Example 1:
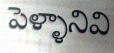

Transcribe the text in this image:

పెళ్ళానివి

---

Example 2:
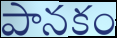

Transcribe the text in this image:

పానకం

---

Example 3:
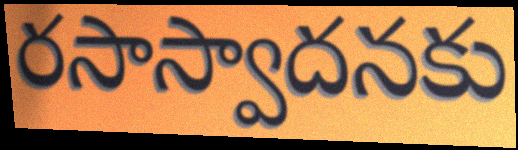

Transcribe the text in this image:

రసాస్వాదనకు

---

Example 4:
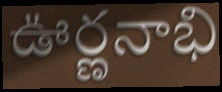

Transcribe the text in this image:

ఊర్ణనాభి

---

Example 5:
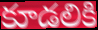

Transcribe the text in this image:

కూడలికి